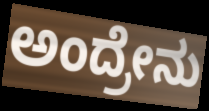
ಅಂದ್ರೇನು